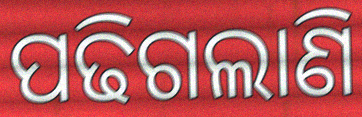
ପଢିଗଲାଣି